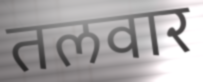
तलवार